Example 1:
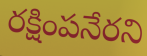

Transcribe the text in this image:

రక్షింపనేరని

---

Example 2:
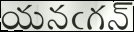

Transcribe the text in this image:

యనఁగన్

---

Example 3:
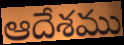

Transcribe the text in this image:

ఆదేశము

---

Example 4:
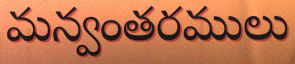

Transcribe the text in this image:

మన్వంతరములు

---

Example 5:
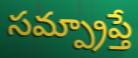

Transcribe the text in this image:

సమ్ప్రాప్తే